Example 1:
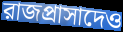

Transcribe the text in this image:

রাজপ্রাসাদেও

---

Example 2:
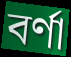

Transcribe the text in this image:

বর্ণা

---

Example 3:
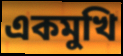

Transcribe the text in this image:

একমুখি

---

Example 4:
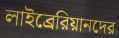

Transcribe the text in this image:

লাইব্রেরিয়ানদের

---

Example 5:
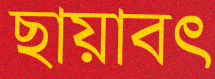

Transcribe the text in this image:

ছায়াবৎ